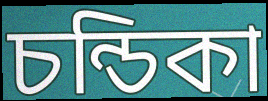
চন্ডিকা